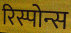
रिस्पोन्स